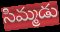
సిమ్మడు